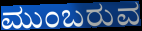
ಮುಂಬರುವ